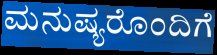
ಮನುಷ್ಯರೊಂದಿಗೆ